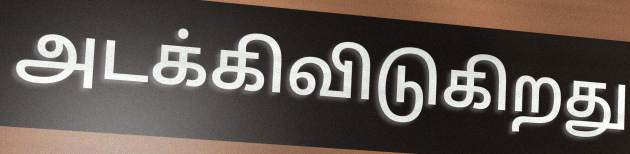
அடக்கிவிடுகிறது